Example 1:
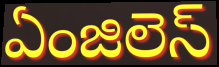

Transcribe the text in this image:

ఏంజిలెస్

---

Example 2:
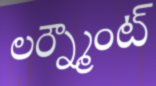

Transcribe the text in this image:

లర్న్మౌంట్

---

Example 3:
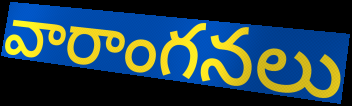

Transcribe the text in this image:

వారాంగనలు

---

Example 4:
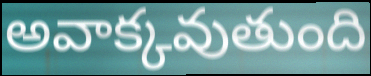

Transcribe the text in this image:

అవాక్కవుతుంది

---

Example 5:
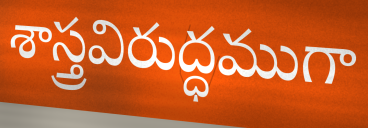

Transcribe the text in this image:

శాస్త్రవిరుద్ధముగా